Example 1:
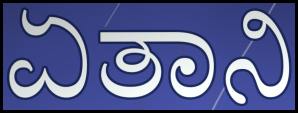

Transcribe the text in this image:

ಏತಾನಿ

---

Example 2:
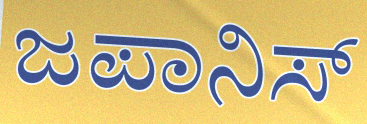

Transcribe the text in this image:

ಜಪಾನಿಸ್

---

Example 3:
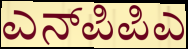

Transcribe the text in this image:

ಎನ್‌ಪಿಪಿಎ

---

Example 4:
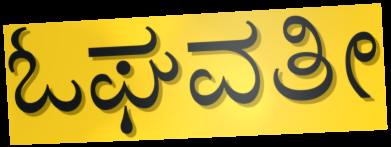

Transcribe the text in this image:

ಓಘವತೀ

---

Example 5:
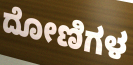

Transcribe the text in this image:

ದೋಣಿಗಳ